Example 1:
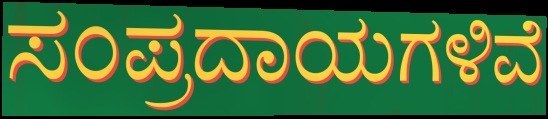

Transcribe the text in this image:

ಸಂಪ್ರದಾಯಗಳಿವೆ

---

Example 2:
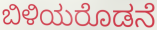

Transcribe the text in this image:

ಬಿಳಿಯರೊಡನೆ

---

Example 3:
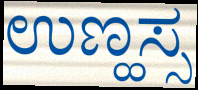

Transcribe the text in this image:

ಉಣ್ಹಸ್ಸ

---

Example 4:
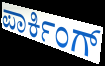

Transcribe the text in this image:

ಪಾರ್ಕಿಂಗ್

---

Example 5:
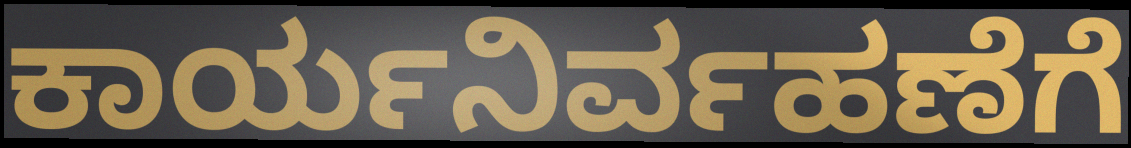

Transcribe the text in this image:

ಕಾರ್ಯನಿರ್ವಹಣೆಗೆ